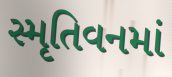
સ્મૃતિવનમાં